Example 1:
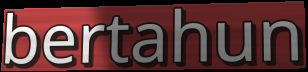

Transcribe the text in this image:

bertahun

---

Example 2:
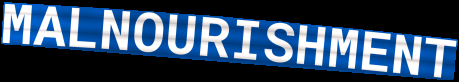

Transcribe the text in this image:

MALNOURISHMENT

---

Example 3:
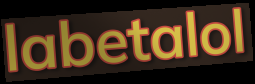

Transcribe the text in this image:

labetalol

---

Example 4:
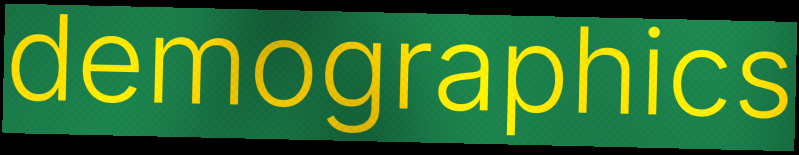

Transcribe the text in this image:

demographics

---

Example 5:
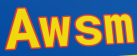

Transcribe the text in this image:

Awsm